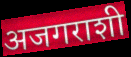
अजगराशी